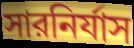
সারনির্যাস